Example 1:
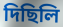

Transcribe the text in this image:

দিছিলি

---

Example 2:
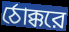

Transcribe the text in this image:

ঠোক্করে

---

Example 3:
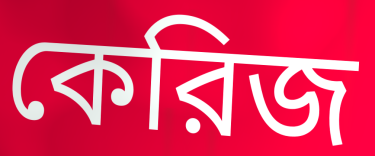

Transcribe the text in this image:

কেরিজ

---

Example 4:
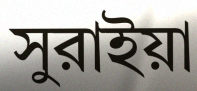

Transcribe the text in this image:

সুরাইয়া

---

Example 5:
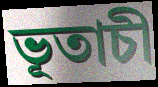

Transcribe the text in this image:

ভূতাচী